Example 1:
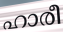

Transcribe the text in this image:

ഹാരീ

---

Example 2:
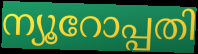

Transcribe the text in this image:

ന്യൂറോപ്പതി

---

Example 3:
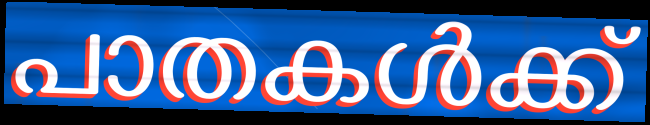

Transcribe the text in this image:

പാതകൾക്ക്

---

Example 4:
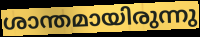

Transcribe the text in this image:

ശാന്തമായിരുന്നു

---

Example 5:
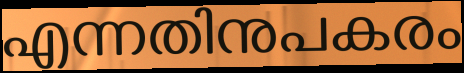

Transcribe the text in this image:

എന്നതിനുപകരം